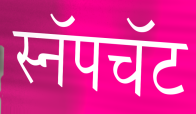
स्नॅपचॅट